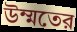
উম্মতের